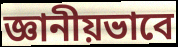
জ্ঞানীয়ভাবে